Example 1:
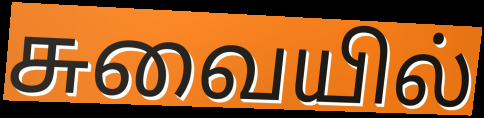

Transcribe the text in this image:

சுவையில்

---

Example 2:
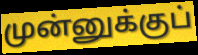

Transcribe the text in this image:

முன்னுக்குப்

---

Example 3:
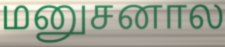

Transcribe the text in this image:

மனுசனால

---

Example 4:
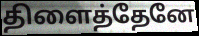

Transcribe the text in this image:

திளைத்தேனே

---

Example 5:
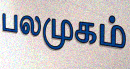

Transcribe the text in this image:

பலமுகம்